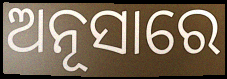
ଅନୂସାରେ